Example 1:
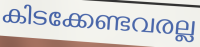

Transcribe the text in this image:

കിടക്കേണ്ടവരല്ല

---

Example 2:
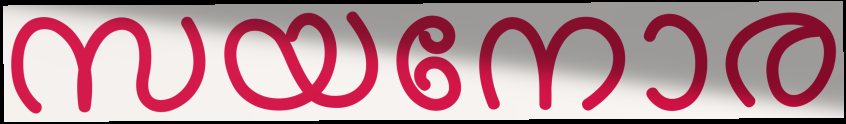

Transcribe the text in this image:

സയനോര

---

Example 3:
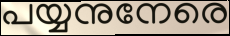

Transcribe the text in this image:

പയ്യനുനേരെ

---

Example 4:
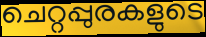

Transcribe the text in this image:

ചെറ്റപ്പുരകളുടെ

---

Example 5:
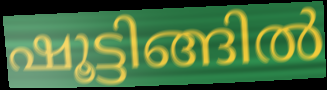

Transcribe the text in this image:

ഷൂട്ടിങ്ങിൽ